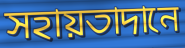
সহায়তাদানে